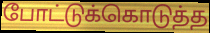
போட்டுக்கொடுத்த